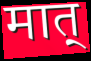
मात्